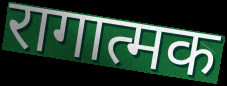
रागात्मक